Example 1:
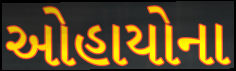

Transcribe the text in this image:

ઓહાયોના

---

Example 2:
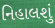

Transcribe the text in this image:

નિહાલશું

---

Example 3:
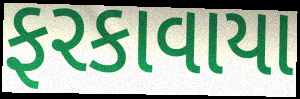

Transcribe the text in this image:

ફરકાવાયા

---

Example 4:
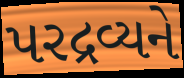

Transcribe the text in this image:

પરદ્રવ્યને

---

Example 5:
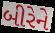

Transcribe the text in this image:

બીરેને